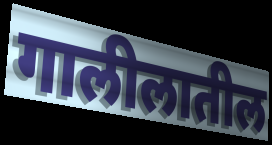
गालीलातील